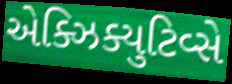
એક્ઝિક્યુટિવ્સે